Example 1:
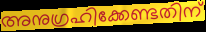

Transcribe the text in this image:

അനുഗ്രഹിക്കേണ്ടതിന്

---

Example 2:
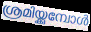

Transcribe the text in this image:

ശ്രമിയ്ക്കുമ്പോൾ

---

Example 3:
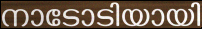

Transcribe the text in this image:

നാടോടിയായി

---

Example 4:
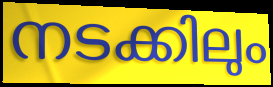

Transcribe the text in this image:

നടക്കിലും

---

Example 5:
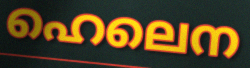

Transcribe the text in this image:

ഹെലെന